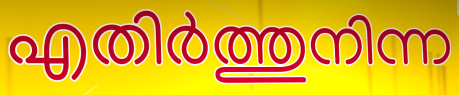
എതിർത്തുനിന്ന